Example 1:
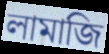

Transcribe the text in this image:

লামাজি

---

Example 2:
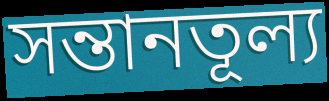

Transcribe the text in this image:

সন্তানতূল্য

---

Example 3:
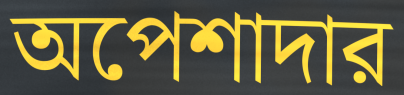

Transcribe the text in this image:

অপেশাদার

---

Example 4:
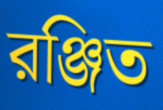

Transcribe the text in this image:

রঞ্জিত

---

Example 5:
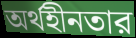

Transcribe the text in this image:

অর্থহীনতার